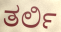
ತರ್ಲಿ